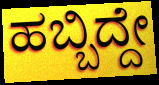
ಹಬ್ಬಿದ್ದೇ